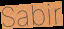
Sabir